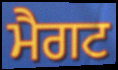
ਮੈਗਟ